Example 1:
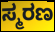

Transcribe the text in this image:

ಸ್ಮರಣ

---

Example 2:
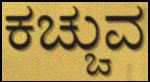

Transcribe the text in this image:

ಕಚ್ಚುವ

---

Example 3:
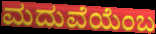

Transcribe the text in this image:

ಮದುವೆಯೆಂಬ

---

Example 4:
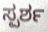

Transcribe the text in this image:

ಸ್ಪರ್ಶ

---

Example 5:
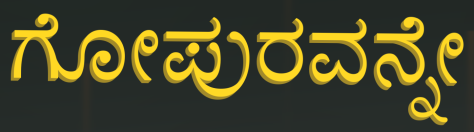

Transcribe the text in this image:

ಗೋಪುರವನ್ನೇ